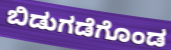
ಬಿಡುಗಡೆಗೊಂಡ